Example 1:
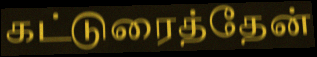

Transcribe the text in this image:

கட்டுரைத்தேன்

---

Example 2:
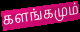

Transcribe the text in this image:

களங்கமும்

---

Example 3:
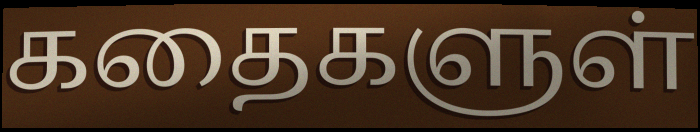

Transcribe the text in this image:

கதைகளுள்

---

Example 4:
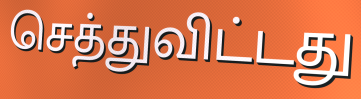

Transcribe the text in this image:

செத்துவிட்டது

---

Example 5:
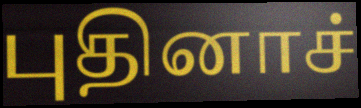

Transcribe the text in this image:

புதினாச்